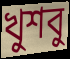
খুশবু